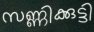
സണ്ണിക്കുട്ടി